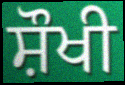
ਸ਼ੌਖੀ